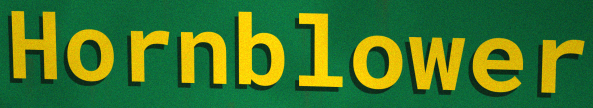
Hornblower